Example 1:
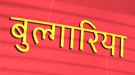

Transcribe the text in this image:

बुल्गारिया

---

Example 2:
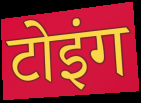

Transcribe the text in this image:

टोइंग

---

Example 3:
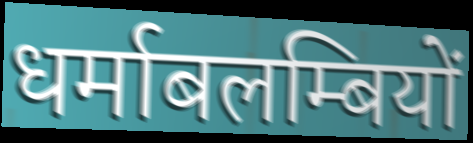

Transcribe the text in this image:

धर्माबलम्बियों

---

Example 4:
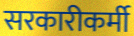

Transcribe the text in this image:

सरकारीकर्मी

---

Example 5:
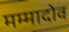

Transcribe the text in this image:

मम्मादोव